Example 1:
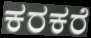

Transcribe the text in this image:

ಕರಕರೆ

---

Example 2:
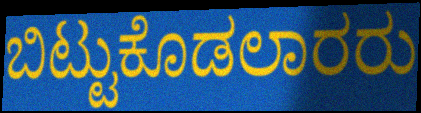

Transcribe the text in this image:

ಬಿಟ್ಟುಕೊಡಲಾರರು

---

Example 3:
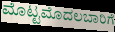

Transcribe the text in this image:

ಮೊಟ್ಟಮೊದಲಬಾರಿಗೆ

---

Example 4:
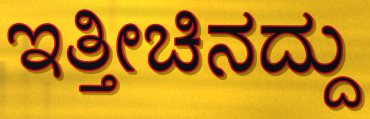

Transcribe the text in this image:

ಇತ್ತೀಚಿನದ್ದು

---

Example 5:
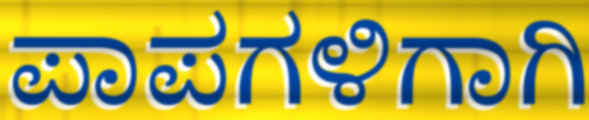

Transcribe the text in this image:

ಪಾಪಗಳಿಗಾಗಿ